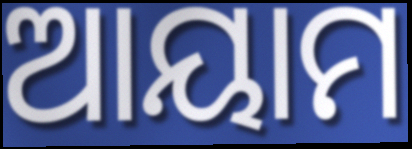
ଆୟାମ